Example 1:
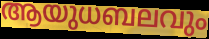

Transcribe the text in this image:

ആയുധബലവും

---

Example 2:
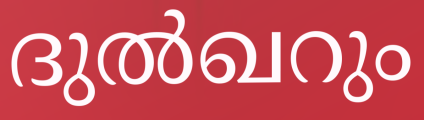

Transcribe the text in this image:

ദുൽഖറും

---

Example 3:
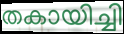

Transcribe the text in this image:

തകായിച്ചി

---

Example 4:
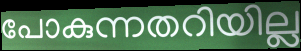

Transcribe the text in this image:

പോകുന്നതറിയില്ല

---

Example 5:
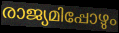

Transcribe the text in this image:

രാജ്യമിപ്പോഴും